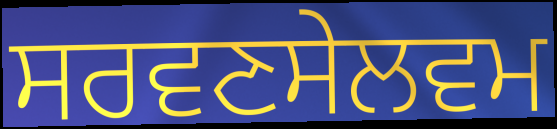
ਸਰਵਣਸੇਲਵਮ